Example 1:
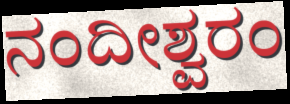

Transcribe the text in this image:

ನಂದೀಶ್ವರಂ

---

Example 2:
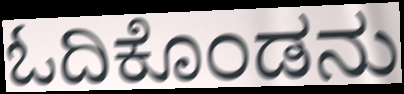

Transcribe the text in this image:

ಓದಿಕೊಂಡನು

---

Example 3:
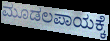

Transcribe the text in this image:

ಮೂಡಲಪಾಯಕ್ಕೆ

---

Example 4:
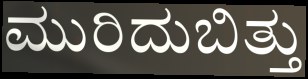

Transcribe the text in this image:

ಮುರಿದುಬಿತ್ತು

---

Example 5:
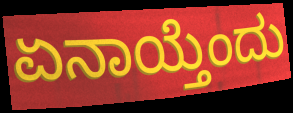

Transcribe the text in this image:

ಏನಾಯ್ತೆಂದು